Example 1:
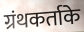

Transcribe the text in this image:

ग्रंथकर्ताके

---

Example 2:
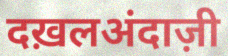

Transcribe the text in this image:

दख़लअंदाज़ी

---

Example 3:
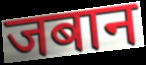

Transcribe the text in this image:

जबान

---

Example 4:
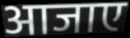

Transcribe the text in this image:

आजाए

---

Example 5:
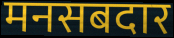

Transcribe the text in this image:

मनसबदार